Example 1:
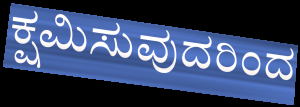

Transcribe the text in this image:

ಕ್ಷಮಿಸುವುದರಿಂದ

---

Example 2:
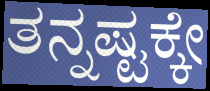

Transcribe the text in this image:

ತನ್ನಷ್ಟಕ್ಕೇ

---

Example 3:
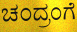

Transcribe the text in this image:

ಚಂದ್ರಂಗೆ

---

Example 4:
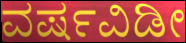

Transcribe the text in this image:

ವರ್ಷವಿಡೀ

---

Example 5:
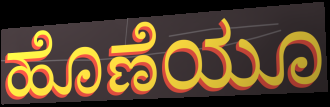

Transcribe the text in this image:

ಹೊಣೆಯೂ